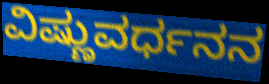
ವಿಷ್ಣುವರ್ಧನನ